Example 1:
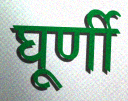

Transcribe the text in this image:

घूर्णी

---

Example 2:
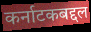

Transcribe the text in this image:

कर्नाटकबद्दल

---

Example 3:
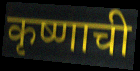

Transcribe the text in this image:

कृष्णाची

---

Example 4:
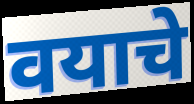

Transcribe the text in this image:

वयाचे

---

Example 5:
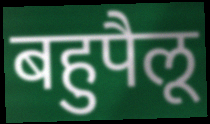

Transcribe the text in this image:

बहुपैलू